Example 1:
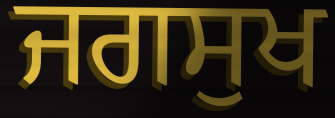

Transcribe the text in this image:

ਜਗਸੁਖ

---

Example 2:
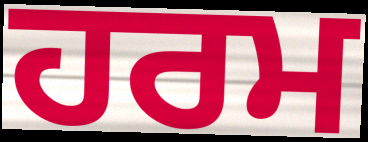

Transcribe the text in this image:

ਹਰਮ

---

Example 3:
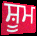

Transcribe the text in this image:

ਸ਼ੂਮ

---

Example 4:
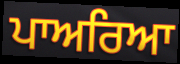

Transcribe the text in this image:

ਪਾਅਰਿਆ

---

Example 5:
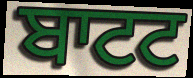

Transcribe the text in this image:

ਬਾਟਟ